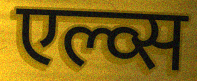
एल्व्स